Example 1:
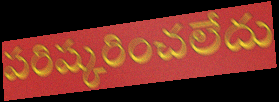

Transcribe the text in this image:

పరిష్కరించలేదు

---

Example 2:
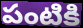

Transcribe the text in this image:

పంటికి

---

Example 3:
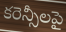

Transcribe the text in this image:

కరెన్సీలపై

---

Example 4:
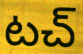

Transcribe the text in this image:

టచ్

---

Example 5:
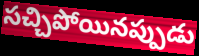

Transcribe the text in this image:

సచ్చిపోయినప్పుడు